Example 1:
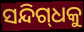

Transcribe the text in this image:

ସନ୍ଦିଗ୍‌ଧକୁ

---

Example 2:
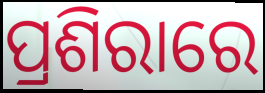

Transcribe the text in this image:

ପ୍ରଶିରାରେ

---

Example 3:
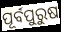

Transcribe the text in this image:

ପୂର୍ବପୁରୁଷ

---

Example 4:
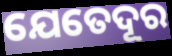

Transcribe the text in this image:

ଯେତେଦୂର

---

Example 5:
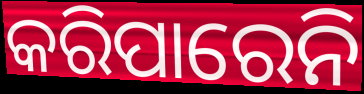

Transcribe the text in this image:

କରିପାରେନି